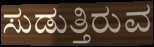
ಸುಡುತ್ತಿರುವ